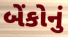
બેંકોનું